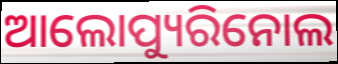
ଆଲୋପ୍ୟୁରିନୋଲ